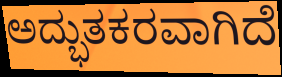
ಅದ್ಭುತಕರವಾಗಿದೆ